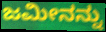
ಜಮೀನನ್ನು